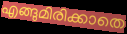
എങ്ങുമിരിക്കാതെ